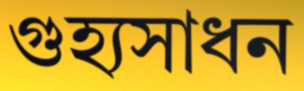
গুহ্যসাধন